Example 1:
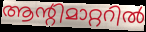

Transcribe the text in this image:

ആന്റിമാറ്ററിൽ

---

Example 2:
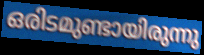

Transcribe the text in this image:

ഒരിടമുണ്ടായിരുന്നു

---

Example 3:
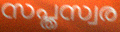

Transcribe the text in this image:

സപ്തസ്വര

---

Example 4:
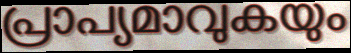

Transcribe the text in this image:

പ്രാപ്യമാവുകയും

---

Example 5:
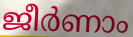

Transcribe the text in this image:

ജീർണാം